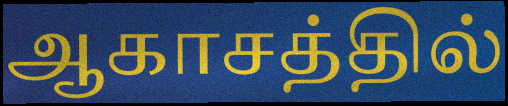
ஆகாசத்தில்